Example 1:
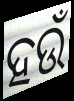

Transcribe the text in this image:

ହଉଁ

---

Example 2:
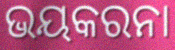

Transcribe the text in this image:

ଭୟକରନା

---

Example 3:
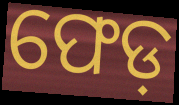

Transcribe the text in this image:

ଫେଡ଼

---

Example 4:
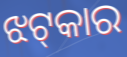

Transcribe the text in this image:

ଝଟ୍‍କାର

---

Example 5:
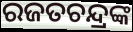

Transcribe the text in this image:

ରଜତଚନ୍ଦ୍ରଙ୍କ